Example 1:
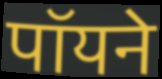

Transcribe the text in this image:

पॉयने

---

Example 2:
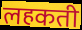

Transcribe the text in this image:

लहकती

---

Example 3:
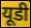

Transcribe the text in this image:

यूडी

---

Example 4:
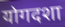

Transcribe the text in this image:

योगदशा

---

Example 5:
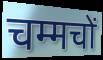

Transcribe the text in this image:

चम्मचों